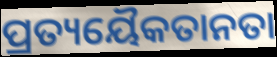
ପ୍ରତ୍ୟୟୈକତାନତା